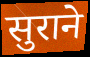
सुराने